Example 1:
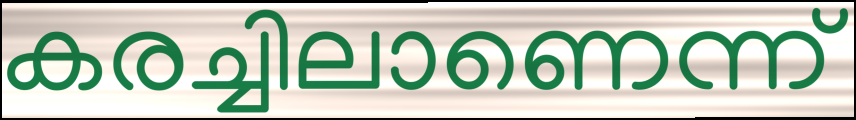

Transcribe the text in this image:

കരച്ചിലാണെന്ന്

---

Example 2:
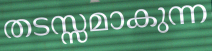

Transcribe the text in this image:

തടസ്സമാകുന്ന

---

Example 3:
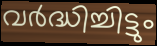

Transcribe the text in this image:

വർദ്ധിച്ചിട്ടും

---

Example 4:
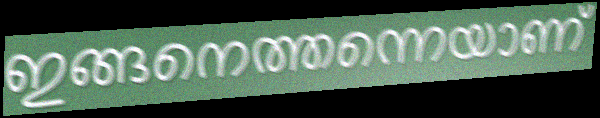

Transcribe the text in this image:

ഇങ്ങനെത്തന്നെയാണ്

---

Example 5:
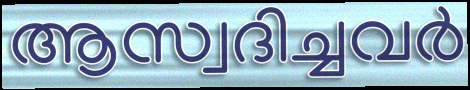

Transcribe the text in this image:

ആസ്വദിച്ചവർ